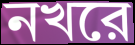
নখরে